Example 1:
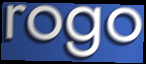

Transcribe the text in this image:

rogo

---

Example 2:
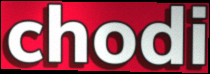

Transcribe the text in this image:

chodi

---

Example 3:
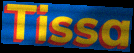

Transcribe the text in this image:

Tissa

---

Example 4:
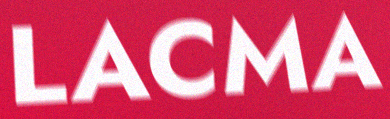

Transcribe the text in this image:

LACMA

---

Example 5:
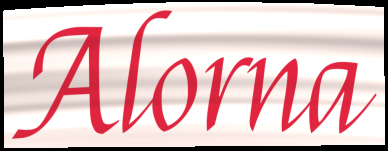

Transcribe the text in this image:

Alorna